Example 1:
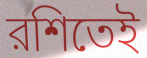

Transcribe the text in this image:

রশিতেই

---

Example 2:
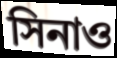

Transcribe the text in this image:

সিনাও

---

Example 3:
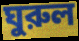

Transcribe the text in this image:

ঘুরুল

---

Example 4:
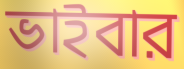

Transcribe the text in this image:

ভাইবার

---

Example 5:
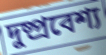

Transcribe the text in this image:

দুষ্প্রবেশ্য